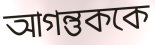
আগন্তুককে